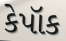
કેપૉક